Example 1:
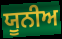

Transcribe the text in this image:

ਯੂਨੀਅ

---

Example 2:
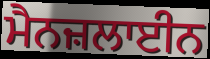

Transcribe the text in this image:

ਮੈਨਜ਼ਲਾਈਨ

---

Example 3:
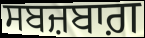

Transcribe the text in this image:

ਸਬਜ਼ਬਾਗ਼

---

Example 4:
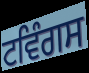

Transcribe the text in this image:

ਟਵਿੰਗਸ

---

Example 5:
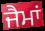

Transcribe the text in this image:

ਜੈਮਾਂ